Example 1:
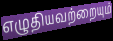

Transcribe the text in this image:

எழுதியவற்றையும்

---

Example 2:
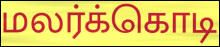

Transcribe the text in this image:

மலர்க்கொடி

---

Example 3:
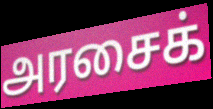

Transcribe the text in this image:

அரசைக்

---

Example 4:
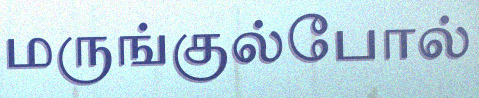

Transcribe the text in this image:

மருங்குல்போல்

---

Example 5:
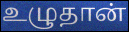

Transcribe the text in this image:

உழுதான்